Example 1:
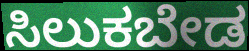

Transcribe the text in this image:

ಸಿಲುಕಬೇಡ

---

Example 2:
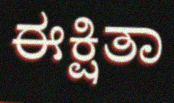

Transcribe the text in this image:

ಈಕ್ಷಿತಾ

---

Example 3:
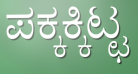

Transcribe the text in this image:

ಪಕ್ಕಕ್ಕಿಟ್ಟ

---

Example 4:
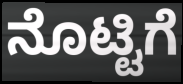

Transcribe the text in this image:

ನೊಟ್ಟಿಗೆ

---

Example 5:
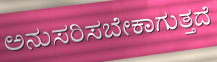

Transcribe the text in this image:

ಅನುಸರಿಸಬೇಕಾಗುತ್ತದೆ